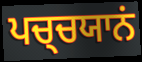
ਪਚ੍ਚਯਾਨਂ